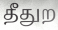
தீதுற